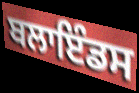
ਬਲਾਇੰਡਸ